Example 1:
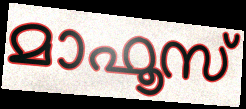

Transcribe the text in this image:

മാഫൂസ്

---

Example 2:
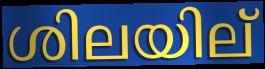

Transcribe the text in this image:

ശിലയില്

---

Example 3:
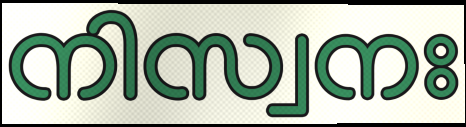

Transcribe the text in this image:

നിസ്വനഃ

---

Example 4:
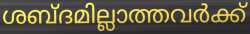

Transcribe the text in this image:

ശബ്ദമില്ലാത്തവർക്ക്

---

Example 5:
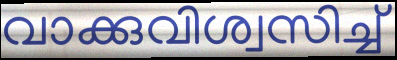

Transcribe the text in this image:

വാക്കുവിശ്വസിച്ച്